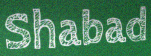
Shabad